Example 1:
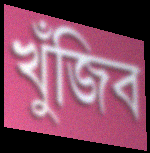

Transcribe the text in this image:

খুঁজিব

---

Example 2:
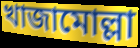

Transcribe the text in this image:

খাজামোল্লা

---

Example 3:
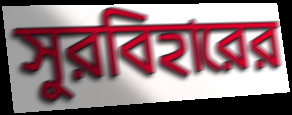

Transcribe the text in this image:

সুরবিহারের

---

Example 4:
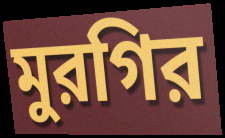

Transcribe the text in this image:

মুরগির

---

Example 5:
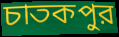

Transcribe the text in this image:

চাতকপুর